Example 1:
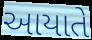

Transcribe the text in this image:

આયાતે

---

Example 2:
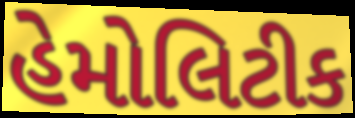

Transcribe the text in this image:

હેમોલિટીક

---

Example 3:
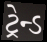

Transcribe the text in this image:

ટ્રેન્ડ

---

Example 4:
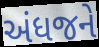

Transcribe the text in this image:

અંધજને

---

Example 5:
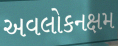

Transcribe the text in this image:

અવલોકનક્ષમ